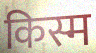
किस्म